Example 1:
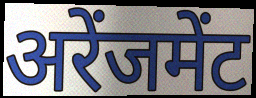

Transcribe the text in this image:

अरेंजमेंट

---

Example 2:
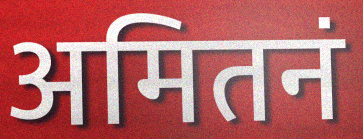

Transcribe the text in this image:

अमितनं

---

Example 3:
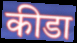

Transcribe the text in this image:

कीडा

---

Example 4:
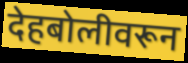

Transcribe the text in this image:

देहबोलीवरून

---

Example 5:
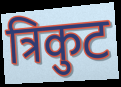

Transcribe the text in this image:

त्रिकुट